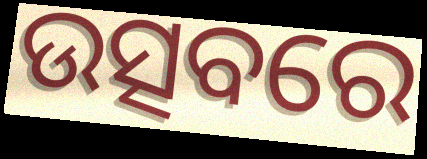
ଉତ୍ସବରେ